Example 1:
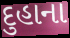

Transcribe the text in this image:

દુહાના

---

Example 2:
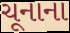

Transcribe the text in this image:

ચૂનાના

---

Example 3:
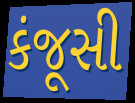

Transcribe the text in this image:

કંજૂસી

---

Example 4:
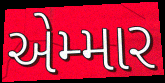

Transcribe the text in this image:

એમ્માર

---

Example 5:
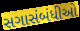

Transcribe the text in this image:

સગાસંબંધીઓ